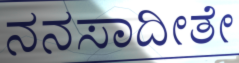
ನನಸಾದೀತೇ